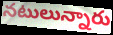
నటులున్నారు